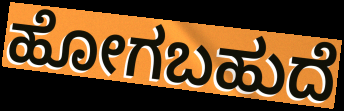
ಹೋಗಬಹುದೆ